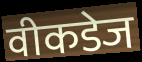
वीकडेज